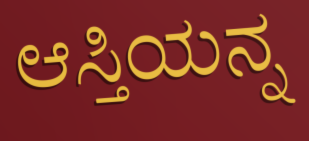
ಆಸ್ತಿಯನ್ನ